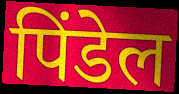
पिंडेल